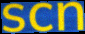
scn